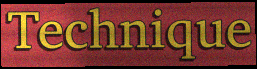
Technique